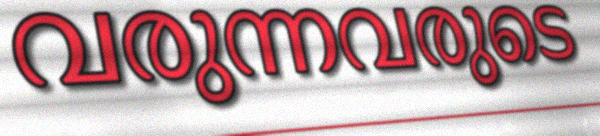
വരുന്നവരുടെ